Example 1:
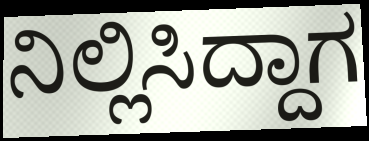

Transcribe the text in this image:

ನಿಲ್ಲಿಸಿದ್ದಾಗ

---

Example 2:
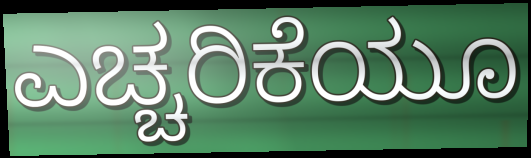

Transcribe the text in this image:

ಎಚ್ಚರಿಕೆಯೂ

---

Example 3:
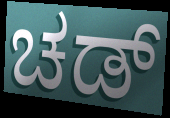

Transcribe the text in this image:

ಚಡ್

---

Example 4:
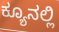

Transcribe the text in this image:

ಕ್ಯೂನಲ್ಲಿ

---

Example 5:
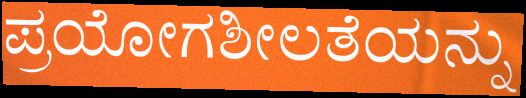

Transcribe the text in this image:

ಪ್ರಯೋಗಶೀಲತೆಯನ್ನು